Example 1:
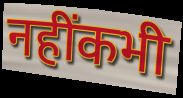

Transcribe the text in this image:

नहींकभी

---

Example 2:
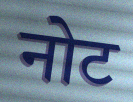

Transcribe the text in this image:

नोट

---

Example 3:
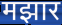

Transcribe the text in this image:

मझार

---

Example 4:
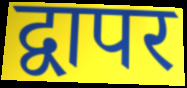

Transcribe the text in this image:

द्वापर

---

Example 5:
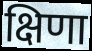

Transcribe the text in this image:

क्षिणा